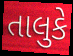
તાલુકે